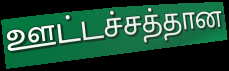
ஊட்டச்சத்தான